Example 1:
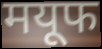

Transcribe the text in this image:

मयूफ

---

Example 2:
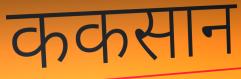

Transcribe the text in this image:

ककसान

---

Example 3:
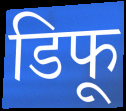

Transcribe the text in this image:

डिफू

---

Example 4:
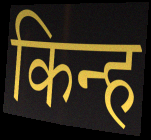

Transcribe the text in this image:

किन्ह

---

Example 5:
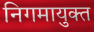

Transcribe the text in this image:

निगमायुक्त